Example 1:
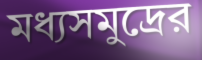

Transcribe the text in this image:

মধ্যসমুদ্রের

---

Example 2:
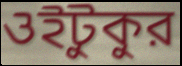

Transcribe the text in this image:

ওইটুকুর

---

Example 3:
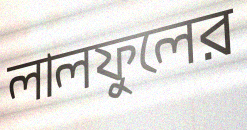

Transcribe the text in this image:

লালফুলের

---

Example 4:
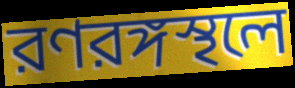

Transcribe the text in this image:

রণরঙ্গস্থলে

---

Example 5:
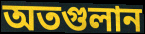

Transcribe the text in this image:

অতগুলান